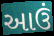
આઉં